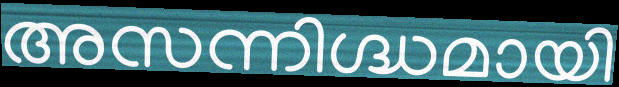
അസന്നിഗ്ദ്ധമായി